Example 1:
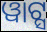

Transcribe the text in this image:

ୱାଟ୍ସ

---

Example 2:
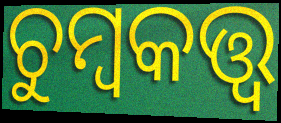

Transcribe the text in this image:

ଚୁମ୍ବକତ୍ତ୍ୱ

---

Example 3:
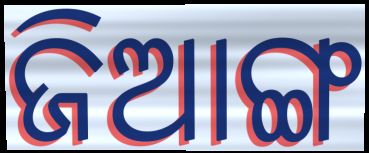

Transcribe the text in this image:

ଜିଆଙ୍ଗ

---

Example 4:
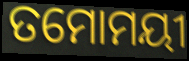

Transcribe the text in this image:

ତମୋମୟୀ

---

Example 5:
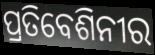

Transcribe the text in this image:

ପ୍ରତିବେଶିନୀର